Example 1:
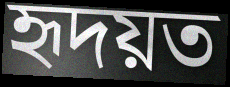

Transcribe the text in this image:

হৃদয়ত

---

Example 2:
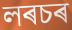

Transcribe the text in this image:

লৰচৰ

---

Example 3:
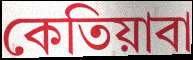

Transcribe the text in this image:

কেতিয়াবা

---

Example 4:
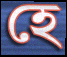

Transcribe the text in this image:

হে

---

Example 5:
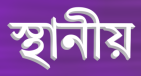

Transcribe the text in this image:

স্থানীয়